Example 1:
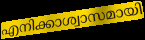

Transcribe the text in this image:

എനിക്കാശ്വാസമായി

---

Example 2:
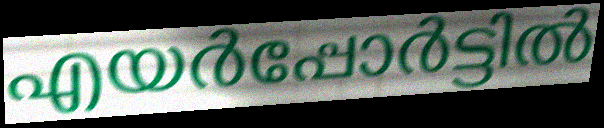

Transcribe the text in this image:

എയർപ്പോർട്ടിൽ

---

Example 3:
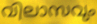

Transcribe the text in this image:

വിലാസവും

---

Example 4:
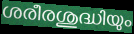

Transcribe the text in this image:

ശരീരശുദ്ധിയും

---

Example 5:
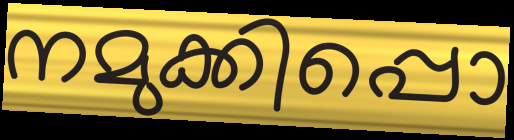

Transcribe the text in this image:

നമുക്കിപ്പൊ